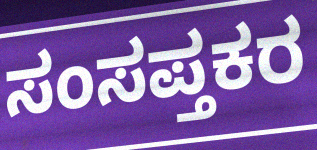
ಸಂಸಪ್ತಕರ